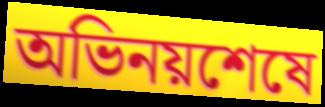
অভিনয়শেষে